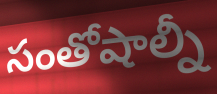
సంతోషాల్నీ